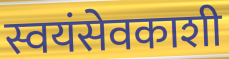
स्वयंसेवकाशी